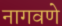
नागवणे